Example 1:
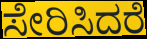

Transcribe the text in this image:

ಸೇರಿಸಿದರೆ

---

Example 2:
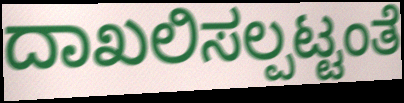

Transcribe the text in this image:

ದಾಖಲಿಸಲ್ಪಟ್ಟಂತೆ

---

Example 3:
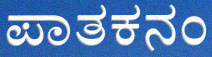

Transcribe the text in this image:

ಪಾತಕನಂ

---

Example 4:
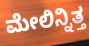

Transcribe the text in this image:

ಮೇಲಿನ್ನಿತ್ತ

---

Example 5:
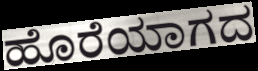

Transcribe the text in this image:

ಹೊರೆಯಾಗದ